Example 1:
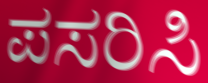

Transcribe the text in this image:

ಪಸರಿಸಿ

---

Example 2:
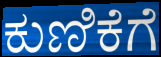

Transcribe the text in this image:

ಕುಣಿಕೆಗೆ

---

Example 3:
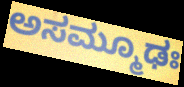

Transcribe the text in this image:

ಅಸಮ್ಮೂಢಃ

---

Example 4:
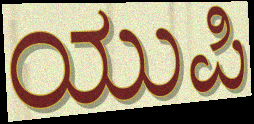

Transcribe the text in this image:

ಯುಪಿ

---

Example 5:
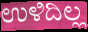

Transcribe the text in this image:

ಉಳಿದಿಲ್ಲ